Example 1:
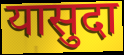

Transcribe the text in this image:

यासुदा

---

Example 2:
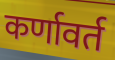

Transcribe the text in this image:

कर्णावर्त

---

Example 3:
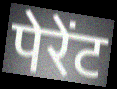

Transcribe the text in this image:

पेरेंट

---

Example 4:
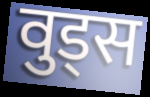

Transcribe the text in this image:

वुड्स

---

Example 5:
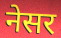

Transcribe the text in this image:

नेसर